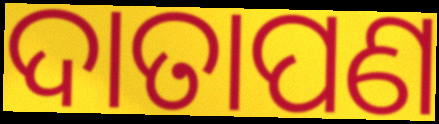
ଦାତାପଣ